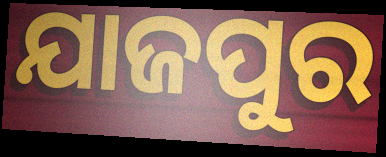
ଯାଜପୁର